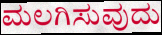
ಮಲಗಿಸುವುದು